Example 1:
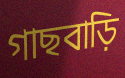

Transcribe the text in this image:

গাছবাড়ি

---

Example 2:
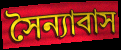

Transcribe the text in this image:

সৈন্যাবাস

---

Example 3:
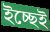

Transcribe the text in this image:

ইচ্ছেই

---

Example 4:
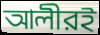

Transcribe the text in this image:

আলীরই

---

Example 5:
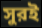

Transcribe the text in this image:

সুরই